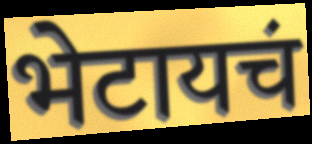
भेटायचं